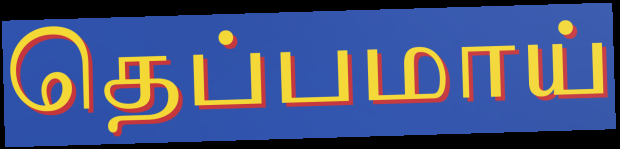
தெப்பமாய்